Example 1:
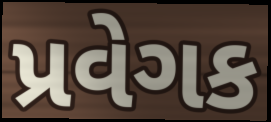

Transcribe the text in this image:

પ્રવેગક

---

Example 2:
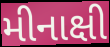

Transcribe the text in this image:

મીનાક્ષી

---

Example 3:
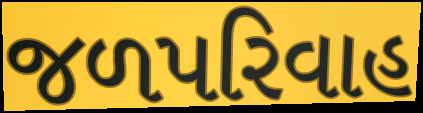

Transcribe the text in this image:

જળપરિવાહ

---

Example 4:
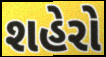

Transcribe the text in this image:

શહેરો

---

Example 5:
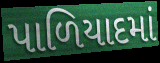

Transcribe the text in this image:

પાળિયાદમાં